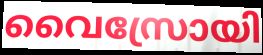
വൈസ്രോയി